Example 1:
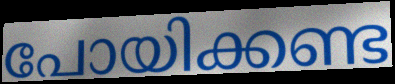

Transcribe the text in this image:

പോയിക്കണ്ട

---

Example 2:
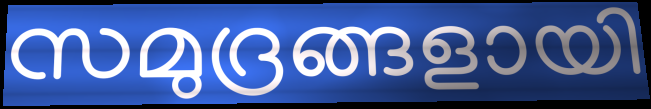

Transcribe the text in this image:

സമുദ്രങ്ങളായി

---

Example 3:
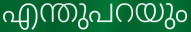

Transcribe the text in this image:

എന്തുപറയും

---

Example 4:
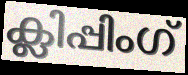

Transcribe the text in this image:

ക്ലിപ്പിംഗ്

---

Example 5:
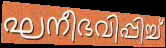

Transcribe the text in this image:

ഘനീഭവിപ്പിച്ച്